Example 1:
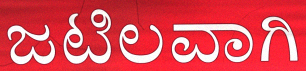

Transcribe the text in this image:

ಜಟಿಲವಾಗಿ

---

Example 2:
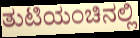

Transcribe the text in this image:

ತುಟಿಯಂಚಿನಲ್ಲಿ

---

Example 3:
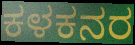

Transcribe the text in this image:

ಕಳಕನರ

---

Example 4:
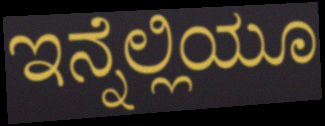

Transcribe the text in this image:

ಇನ್ನೆಲ್ಲಿಯೂ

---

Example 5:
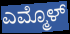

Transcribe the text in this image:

ಎಮ್ಮೊಳ್